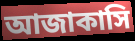
আজাকাসি